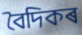
বৈদিকৰ